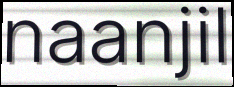
naanjil